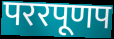
पररपूणप